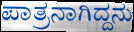
ಪಾತ್ರನಾಗಿದ್ದನು